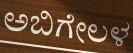
ಅಬಿಗೇಲಳ